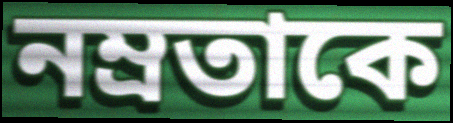
নম্রতাকে